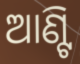
ଆଣ୍ଟି